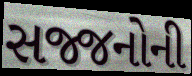
સજ્જનોની